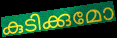
കുടിക്കുമോ